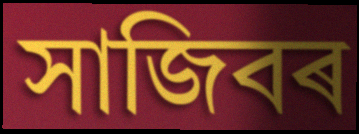
সাজিবৰ